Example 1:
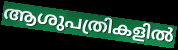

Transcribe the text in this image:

ആശുപത്രികളിൽ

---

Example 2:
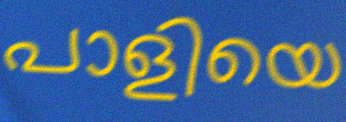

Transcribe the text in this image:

പാളിയെ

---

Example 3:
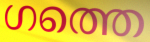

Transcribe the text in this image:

ഗത്തെ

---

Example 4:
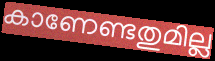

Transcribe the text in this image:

കാണേണ്ടതുമില്ല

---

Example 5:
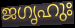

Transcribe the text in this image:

ജഗൃഹുഃ